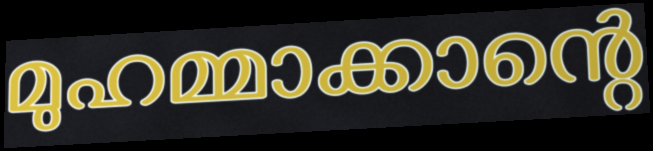
മുഹമ്മാക്കാന്റെ